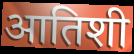
आतिशी